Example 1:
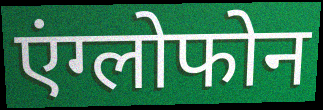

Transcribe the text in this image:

एंग्लोफोन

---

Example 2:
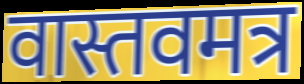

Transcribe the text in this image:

वास्तवमत्र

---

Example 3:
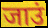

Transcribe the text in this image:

जाउं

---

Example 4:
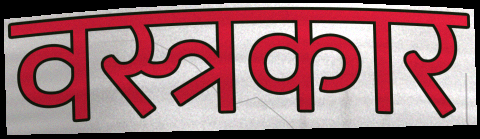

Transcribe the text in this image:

वस्त्रकार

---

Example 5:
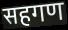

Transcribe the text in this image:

सहगण